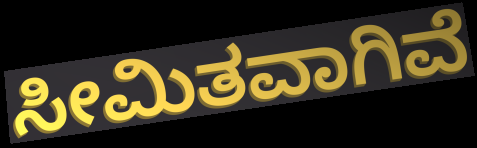
ಸೀಮಿತವಾಗಿವೆ